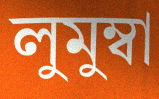
লুমুম্বা